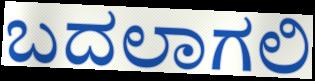
ಬದಲಾಗಲಿ